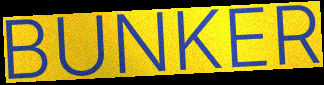
BUNKER